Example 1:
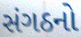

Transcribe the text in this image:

સંગઠનો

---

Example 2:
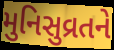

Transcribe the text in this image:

મુનિસુવ્રતને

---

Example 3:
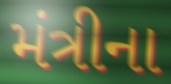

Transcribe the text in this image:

મંત્રીના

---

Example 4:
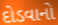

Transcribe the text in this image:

દોડવાનો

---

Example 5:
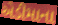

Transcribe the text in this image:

એડીમાના